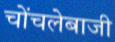
चोंचलेबाजी